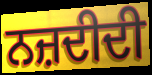
ਨਜ਼ਦੀਦੀ